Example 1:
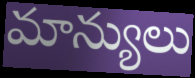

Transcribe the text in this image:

మాన్యులు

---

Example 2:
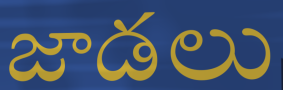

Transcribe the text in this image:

జాడలు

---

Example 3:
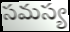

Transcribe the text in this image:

సమస్య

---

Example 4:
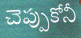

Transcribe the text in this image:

చెప్పుకోనీ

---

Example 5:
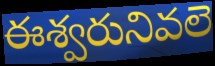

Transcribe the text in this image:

ఈశ్వరునివలె